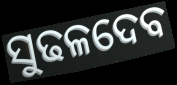
ସୁଢଳଦେବ